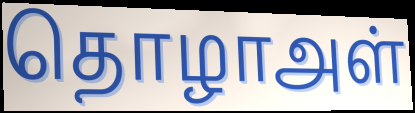
தொழாஅள்